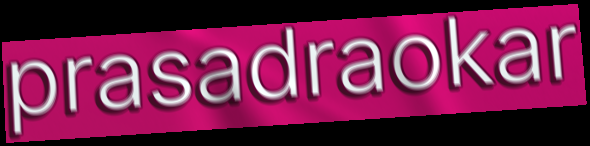
prasadraokar